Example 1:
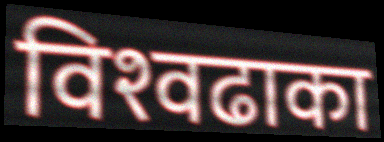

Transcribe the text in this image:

विश्वढाका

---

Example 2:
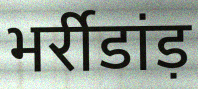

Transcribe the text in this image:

भर्रीडांड़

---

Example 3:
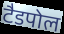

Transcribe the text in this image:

टैडपोल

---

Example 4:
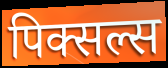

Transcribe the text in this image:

पिक्सल्स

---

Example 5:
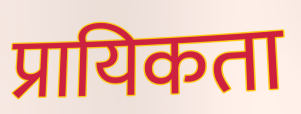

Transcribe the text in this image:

प्रायिकता